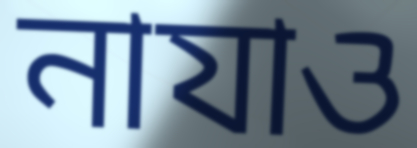
নাযাও